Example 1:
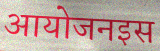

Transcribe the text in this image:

आयोजनइस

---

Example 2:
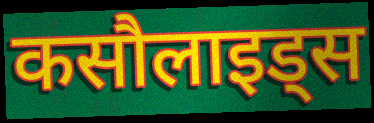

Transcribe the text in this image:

कसौलाइड्स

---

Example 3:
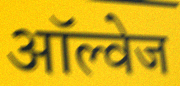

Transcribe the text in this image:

ऑल्वेज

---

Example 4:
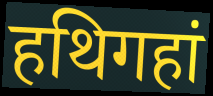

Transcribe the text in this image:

हथिगहां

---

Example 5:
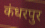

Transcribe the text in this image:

कंधरपुर